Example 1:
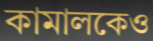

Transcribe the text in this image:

কামালকেও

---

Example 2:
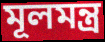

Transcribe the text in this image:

মূলমন্ত্র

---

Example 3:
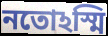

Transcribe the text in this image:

নতোঽস্মি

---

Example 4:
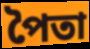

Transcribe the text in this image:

পৈতা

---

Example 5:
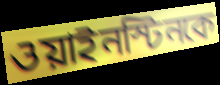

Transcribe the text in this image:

ওয়াইনস্টিনকে